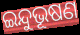
ଇନ୍ଦୁଭୂଷଣ